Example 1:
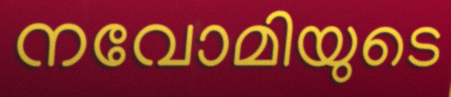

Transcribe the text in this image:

നവോമിയുടെ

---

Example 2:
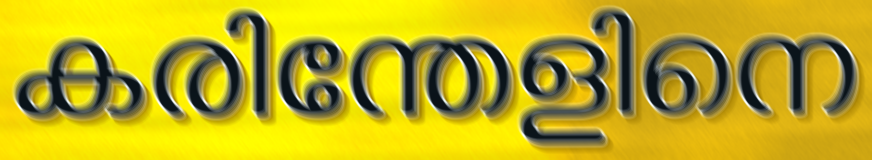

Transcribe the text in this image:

കരിന്തേളിനെ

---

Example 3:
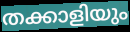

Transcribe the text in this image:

തക്കാളിയും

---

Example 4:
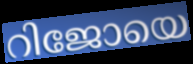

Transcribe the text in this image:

റിജോയെ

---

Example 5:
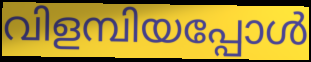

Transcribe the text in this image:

വിളമ്പിയപ്പോൾ